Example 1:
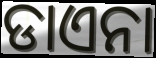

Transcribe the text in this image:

ଡାଏନା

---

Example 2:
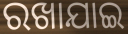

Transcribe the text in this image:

ରଖାଯାଇ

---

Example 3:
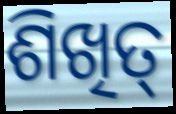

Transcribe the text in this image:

ଶିଖିତ୍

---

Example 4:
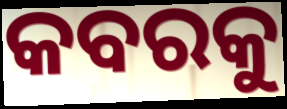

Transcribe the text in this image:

କବରକୁ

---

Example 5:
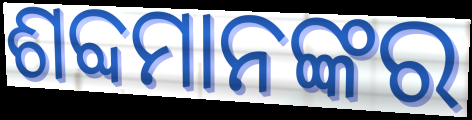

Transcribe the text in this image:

ଶବ୍ଦମାନଙ୍କର